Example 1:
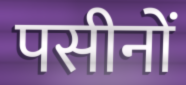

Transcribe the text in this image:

पसीनों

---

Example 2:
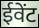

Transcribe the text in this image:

ईवेंट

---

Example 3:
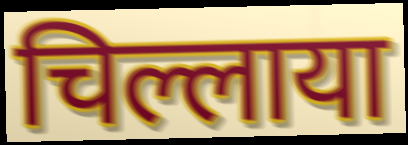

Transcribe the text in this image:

चिल्लाया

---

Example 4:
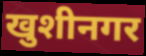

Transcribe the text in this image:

खुशीनगर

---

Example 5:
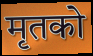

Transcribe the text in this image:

मृतको